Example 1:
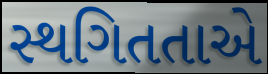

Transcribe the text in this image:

સ્થગિતતાએ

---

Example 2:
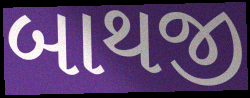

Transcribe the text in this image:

બાથજી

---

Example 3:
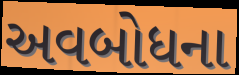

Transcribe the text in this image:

અવબોધના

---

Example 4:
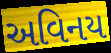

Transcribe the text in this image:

અવિનય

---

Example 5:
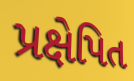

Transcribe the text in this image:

પ્રક્ષેપિત